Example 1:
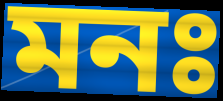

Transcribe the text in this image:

মনঃ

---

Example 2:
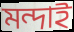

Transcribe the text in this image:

মন্দাই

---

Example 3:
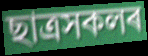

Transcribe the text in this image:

ছাত্ৰসকলৰ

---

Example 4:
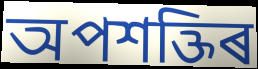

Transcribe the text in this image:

অপশক্তিৰ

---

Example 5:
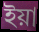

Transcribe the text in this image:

ইয়া